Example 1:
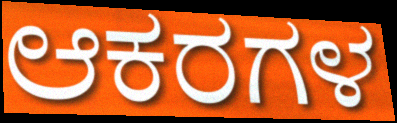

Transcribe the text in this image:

ಆಕರಗಳ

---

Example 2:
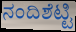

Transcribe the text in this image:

ನಂದಿಶೆಟ್ಟಿ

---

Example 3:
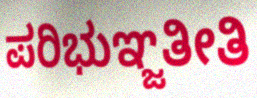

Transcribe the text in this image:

ಪರಿಭುಞ್ಜತೀತಿ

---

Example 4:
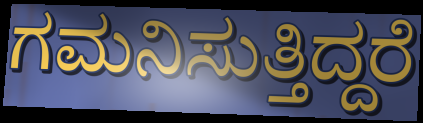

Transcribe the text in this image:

ಗಮನಿಸುತ್ತಿದ್ದರೆ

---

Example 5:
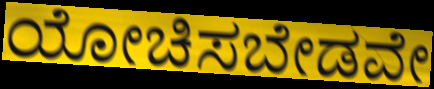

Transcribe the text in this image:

ಯೋಚಿಸಬೇಡವೇ